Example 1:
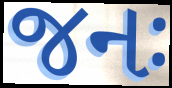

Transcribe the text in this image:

જનઃ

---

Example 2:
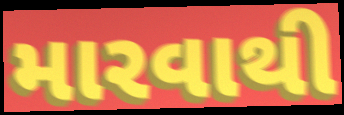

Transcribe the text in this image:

મારવાથી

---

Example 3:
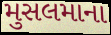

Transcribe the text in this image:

મુસલમાના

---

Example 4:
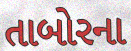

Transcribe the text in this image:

તાબોરના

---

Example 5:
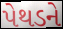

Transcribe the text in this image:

પેથડને